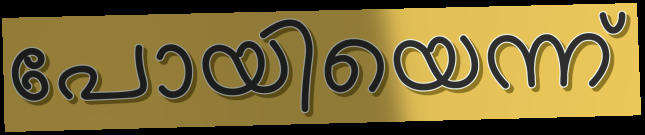
പോയിയെന്ന്